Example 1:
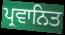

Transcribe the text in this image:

ਪ੍ਰਵਾਨਿਤ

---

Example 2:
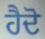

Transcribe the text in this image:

ਹੈਦੋ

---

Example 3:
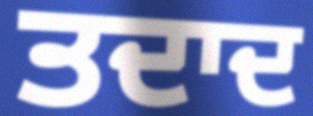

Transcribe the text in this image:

ਤਦਾਦ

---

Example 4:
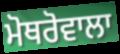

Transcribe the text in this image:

ਮੋਥਰੋਵਾਲਾ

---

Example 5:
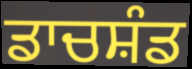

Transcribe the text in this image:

ਡਾਚਸ਼ੰਡ